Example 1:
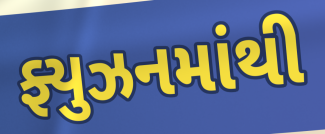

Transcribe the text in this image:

ફ્યુઝનમાંથી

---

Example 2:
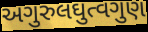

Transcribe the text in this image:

અગુરુલઘુત્વગુણ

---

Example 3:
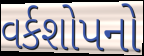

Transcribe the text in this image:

વર્કશોપનો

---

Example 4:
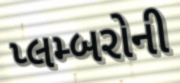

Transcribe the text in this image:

પ્લમ્બરોની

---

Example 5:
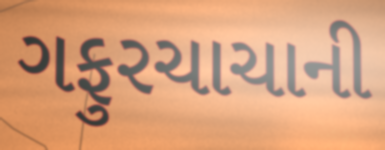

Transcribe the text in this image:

ગફુરચાચાની